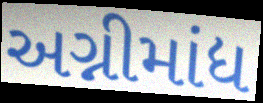
અગ્નીમાંદ્ય